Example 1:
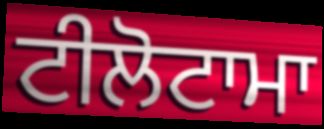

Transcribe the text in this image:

ਟੀਲੋਟਾਮਾ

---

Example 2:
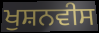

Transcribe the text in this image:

ਖੁਸ਼ਨਵੀਸ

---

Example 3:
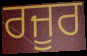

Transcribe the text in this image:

ਰਜੂਰ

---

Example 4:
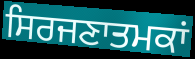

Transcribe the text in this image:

ਸਿਰਜਣਾਤਮਕਾਂ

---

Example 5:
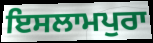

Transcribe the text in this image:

ਇਸਲਾਮਪੁਰਾ